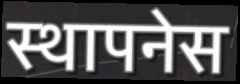
स्थापनेस